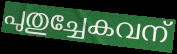
പുതുച്ചേകവന്